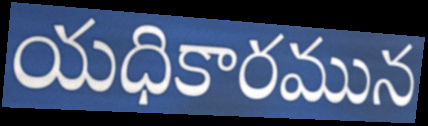
యధికారమున